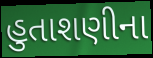
હુતાશણીના